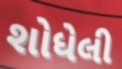
શોધેલી